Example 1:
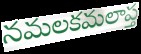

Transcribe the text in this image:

నమలకమలాప్త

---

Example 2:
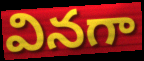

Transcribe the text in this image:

వినగా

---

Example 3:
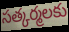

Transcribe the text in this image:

సత్కర్మలకు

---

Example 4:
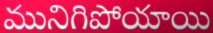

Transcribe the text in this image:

మునిగిపోయాయి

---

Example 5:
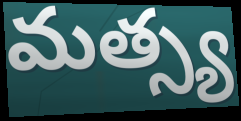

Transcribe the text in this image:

మత్స్య